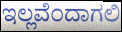
ಇಲ್ಲವೆಂದಾಗಲಿ